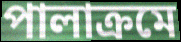
পালাক্রমে